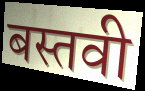
बस्तवी